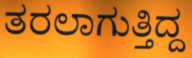
ತರಲಾಗುತ್ತಿದ್ದ